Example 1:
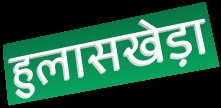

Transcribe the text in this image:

हुलासखेड़ा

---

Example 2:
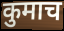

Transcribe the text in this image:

कुमाच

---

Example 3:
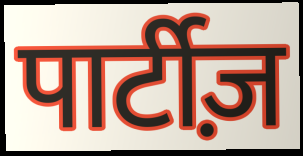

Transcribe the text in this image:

पार्टीज़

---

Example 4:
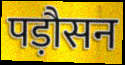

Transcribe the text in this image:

पड़ौसन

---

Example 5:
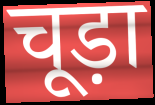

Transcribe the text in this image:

चूड़ा